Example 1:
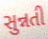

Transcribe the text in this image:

સુન્નતી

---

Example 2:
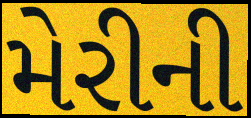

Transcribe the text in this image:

મેરીની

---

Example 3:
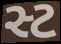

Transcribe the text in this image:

સ્ટ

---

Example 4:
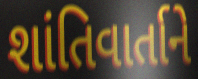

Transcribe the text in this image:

શાંતિવાર્તાને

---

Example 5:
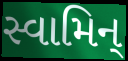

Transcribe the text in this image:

સ્વામિન્